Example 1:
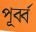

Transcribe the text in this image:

পূর্ব্ব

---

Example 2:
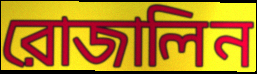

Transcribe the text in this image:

রোজালিন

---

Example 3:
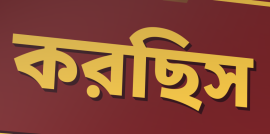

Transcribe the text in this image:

করছিস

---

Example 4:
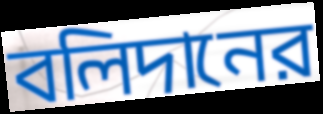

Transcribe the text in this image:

বলিদানের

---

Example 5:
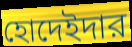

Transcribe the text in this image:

হোদেইদার